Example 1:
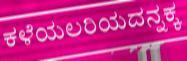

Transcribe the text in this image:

ಕಳೆಯಲರಿಯದನ್ನಕ್ಕ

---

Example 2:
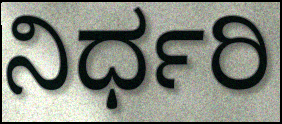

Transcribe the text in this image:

ನಿರ್ಧರಿ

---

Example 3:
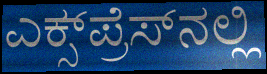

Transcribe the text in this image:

ಎಕ್ಸ್‌ಪ್ರೆಸ್‌ನಲ್ಲಿ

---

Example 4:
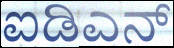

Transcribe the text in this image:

ಐಡಿಎನ್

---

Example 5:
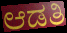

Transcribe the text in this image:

ಆಡತಿ